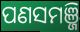
ପଣସମଞ୍ଜି